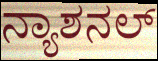
ನ್ಯಾಶನಲ್